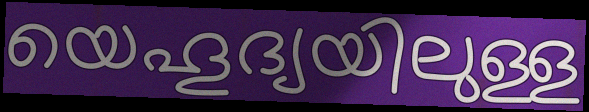
യെഹൂദ്യയിലുള്ള